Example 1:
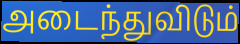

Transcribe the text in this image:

அடைந்துவிடும்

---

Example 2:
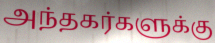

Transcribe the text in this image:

அந்தகர்களுக்கு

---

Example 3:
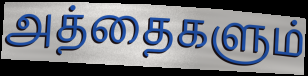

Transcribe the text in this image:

அத்தைகளும்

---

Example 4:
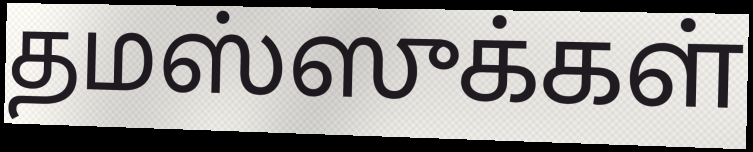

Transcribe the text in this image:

தமஸ்ஸுக்கள்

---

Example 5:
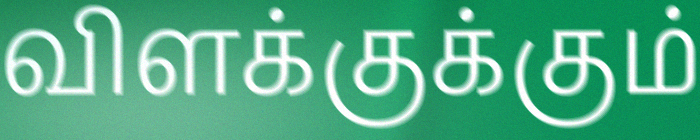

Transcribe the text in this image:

விளக்குக்கும்